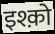
इश्क़ो